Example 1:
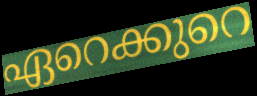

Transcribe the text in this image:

ഏറെക്കുറെ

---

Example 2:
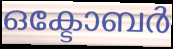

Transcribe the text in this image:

ഒക്ടോബർ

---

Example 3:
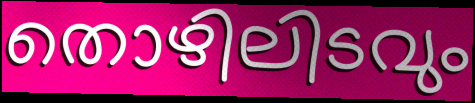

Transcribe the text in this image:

തൊഴിലിടവും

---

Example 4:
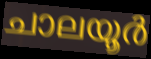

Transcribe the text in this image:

ചാലയൂർ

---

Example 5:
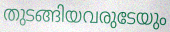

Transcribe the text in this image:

തുടങ്ങിയവരുടേയും